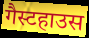
गैस्टहाउस